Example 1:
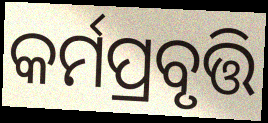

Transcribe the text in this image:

କର୍ମପ୍ରବୃତ୍ତି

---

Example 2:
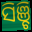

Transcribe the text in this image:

ସିଞ୍ଚି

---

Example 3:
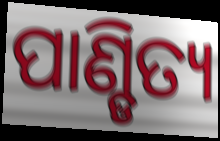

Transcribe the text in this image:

ପାଣ୍ଡିତ୍ୟ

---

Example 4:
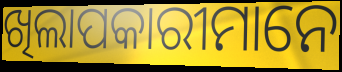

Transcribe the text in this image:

ଖିଲାପକାରୀମାନେ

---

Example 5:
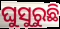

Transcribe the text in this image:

ଘୁସୁରୁଛି